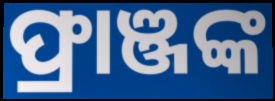
ଫ୍ରାଞ୍ଜଙ୍କ